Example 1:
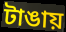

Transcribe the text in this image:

টাঙায়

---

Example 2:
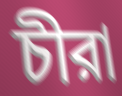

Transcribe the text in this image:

চীরা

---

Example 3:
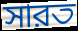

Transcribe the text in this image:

সারত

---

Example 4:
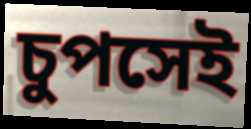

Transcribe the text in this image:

চুপসেই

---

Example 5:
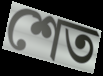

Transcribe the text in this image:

শেত